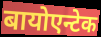
बायोएन्टेक